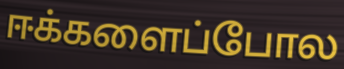
ஈக்களைப்போல